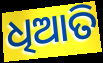
ଧିଆତି